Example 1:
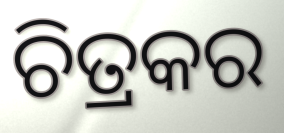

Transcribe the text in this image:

ଚିତ୍ରକର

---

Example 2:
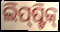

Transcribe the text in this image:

ଲିପ୍‌ଷ୍ଟିକ୍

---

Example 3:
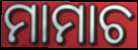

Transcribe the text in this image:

ମାମାଚ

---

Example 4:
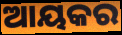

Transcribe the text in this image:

ଆୟକର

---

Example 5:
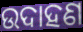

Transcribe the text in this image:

ଉଦାହଣ